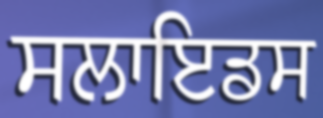
ਸਲਾਇਡਸ